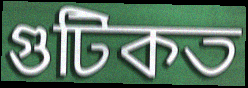
গুটিকত